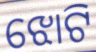
ଝୋଟି